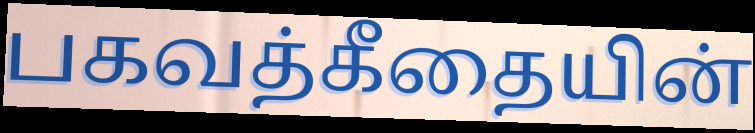
பகவத்கீதையின்